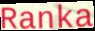
Ranka